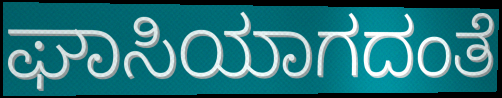
ಘಾಸಿಯಾಗದಂತೆ